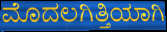
ಮೊದಲಗಿತ್ತಿಯಾಗಿ